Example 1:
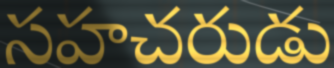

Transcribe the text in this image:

సహచరుడు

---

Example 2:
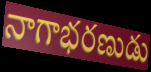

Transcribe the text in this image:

నాగాభరణుడు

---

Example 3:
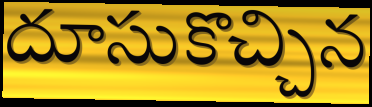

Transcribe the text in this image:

దూసుకొచ్చిన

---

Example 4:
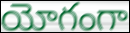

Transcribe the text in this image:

యోగంగా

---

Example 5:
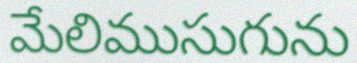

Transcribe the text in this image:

మేలిముసుగును